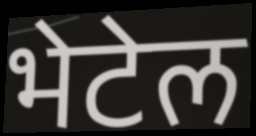
भेटेल